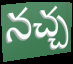
నచ్చ